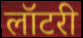
लॉटरी